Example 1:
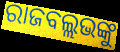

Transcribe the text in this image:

ରାଜବଲ୍ଲଭଙ୍କୁ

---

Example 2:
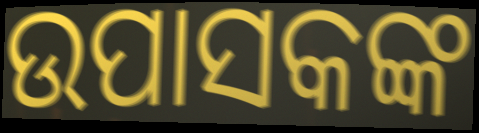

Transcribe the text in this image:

ଉପାସକଙ୍କ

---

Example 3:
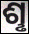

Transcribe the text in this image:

ଶୢ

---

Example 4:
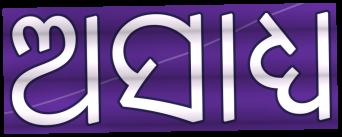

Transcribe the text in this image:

ଅସାଧ୍ୟ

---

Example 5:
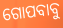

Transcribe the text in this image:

ଗୋପବାବୁ